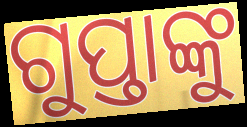
ଗୁପ୍ତାଙ୍କୁ